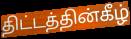
திட்டத்தின்கீழ்